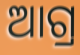
ଆଗ୍ର